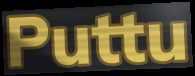
Puttu